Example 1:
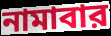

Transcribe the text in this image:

নামাবার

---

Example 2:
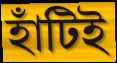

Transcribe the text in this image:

হাঁটিই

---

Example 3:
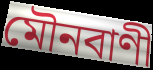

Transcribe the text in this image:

মৌনবাণী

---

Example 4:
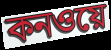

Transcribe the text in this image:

কনওয়ে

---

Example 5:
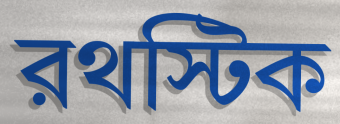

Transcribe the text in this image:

রথস্টিক